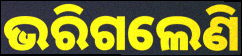
ଭରିଗଲେଣି